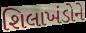
શિલાખંડોને